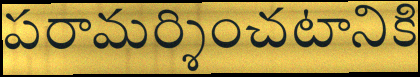
పరామర్శించటానికి